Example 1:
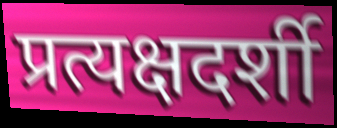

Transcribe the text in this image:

प्रत्यक्षदर्शी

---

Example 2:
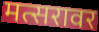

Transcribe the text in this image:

मत्सरावर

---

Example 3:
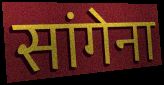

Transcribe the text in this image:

सांगेना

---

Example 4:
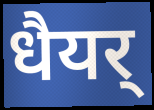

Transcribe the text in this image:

धैयर्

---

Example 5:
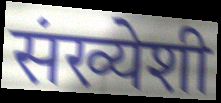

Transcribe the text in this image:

संख्येशी